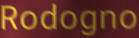
Rodogno